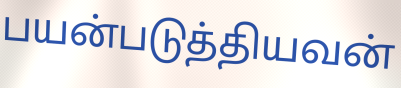
பயன்படுத்தியவன்